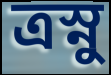
ত্রস্নু